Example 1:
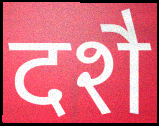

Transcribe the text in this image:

दशै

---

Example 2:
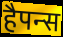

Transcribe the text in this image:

हैपन्स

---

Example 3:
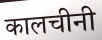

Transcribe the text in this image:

कालचीनी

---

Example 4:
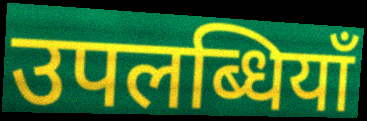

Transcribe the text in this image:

उपलब्धियाँ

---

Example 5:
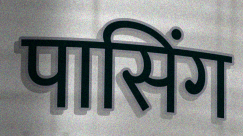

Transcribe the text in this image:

पासिंग